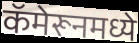
कॅमेरूनमध्ये